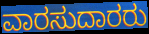
ವಾರಸುದಾರರು